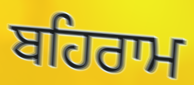
ਬਹਿਰਾਮ